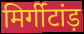
मिर्गीटांड़